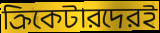
ক্রিকেটারদেরই